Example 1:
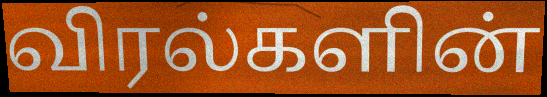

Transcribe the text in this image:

விரல்களின்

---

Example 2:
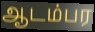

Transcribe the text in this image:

ஆடம்பர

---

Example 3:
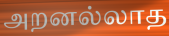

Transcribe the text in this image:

அறனல்லாத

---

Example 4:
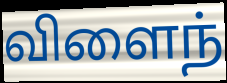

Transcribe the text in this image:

விளைந்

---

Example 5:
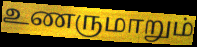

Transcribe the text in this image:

உணருமாறும்